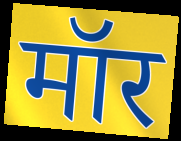
मॉर